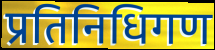
प्रतिनिधिगण